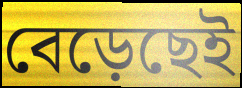
বেড়েছেই